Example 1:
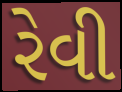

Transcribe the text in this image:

રેવી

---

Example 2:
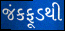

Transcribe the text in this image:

જંકફૂડથી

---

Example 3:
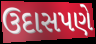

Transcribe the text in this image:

ઉદાસપણે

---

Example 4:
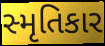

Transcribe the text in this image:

સ્મૃતિકાર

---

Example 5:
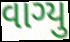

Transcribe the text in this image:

વાગ્યુ